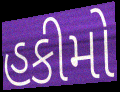
હકીમો